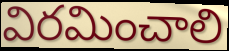
విరమించాలి